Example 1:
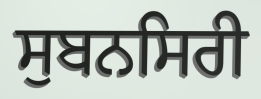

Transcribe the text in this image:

ਸੁਬਨਸਿਰੀ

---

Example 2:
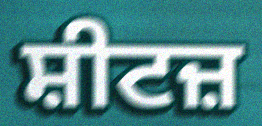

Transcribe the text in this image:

ਸ਼ੀਟਜ਼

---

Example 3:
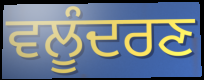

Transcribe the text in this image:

ਵਲੂੰਦਰਣ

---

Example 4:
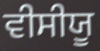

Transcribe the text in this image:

ਵੀਸੀਯੂ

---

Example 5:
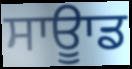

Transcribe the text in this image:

ਸਾਊਾਡ